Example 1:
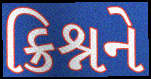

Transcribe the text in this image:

ક્રિશ્નને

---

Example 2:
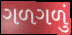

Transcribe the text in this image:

ગળગળું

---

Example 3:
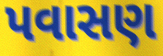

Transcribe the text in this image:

પવાસણ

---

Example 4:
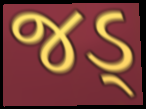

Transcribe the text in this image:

જડ્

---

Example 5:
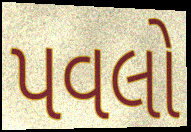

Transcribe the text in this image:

પવલો